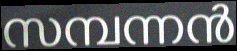
സമ്പന്നൻ